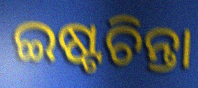
ଇଷ୍ଟଚିନ୍ତା